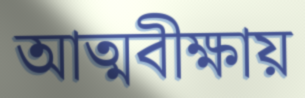
আত্মবীক্ষায়